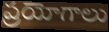
ప్రయోగాలు